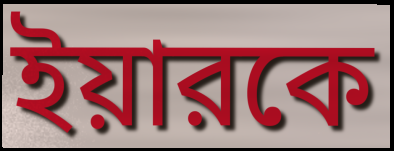
ইয়ারকে